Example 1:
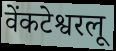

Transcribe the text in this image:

वेंकटेश्वरलू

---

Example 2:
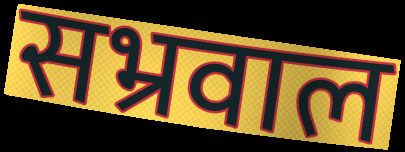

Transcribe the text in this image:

सभ्रवाल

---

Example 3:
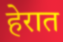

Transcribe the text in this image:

हेरात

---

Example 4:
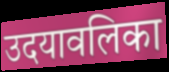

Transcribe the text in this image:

उदयावलिका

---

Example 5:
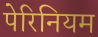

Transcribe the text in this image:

पेरिनियम